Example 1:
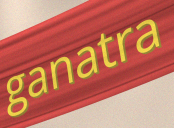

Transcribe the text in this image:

ganatra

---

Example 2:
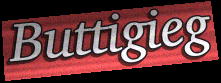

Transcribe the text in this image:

Buttigieg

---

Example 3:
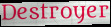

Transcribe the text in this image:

Destroyer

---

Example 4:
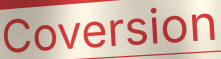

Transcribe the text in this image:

Coversion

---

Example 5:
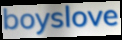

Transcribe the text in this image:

boyslove